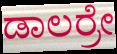
ಡಾಲರ್ರೇ